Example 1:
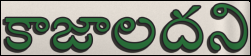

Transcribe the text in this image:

కాజాలదని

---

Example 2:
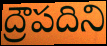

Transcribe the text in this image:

ద్రౌపదిని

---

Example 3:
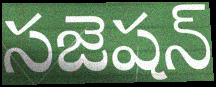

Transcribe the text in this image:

సజెషన్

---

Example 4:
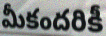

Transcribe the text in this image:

మీకందరికీ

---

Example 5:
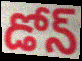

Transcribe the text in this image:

డోన్